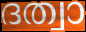
ദത്വാ